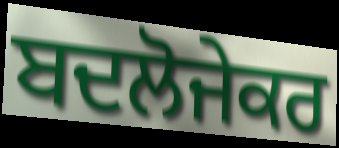
ਬਦਲੋਜੇਕਰ